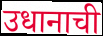
उधानाची